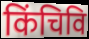
किंचिवि